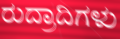
ರುದ್ರಾದಿಗಳು